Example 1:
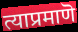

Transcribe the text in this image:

त्याप्रमाणॆ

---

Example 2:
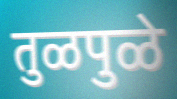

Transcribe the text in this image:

तुळपुळे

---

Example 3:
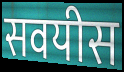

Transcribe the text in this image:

सवयीस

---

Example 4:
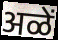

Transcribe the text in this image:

अळें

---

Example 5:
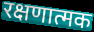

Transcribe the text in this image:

रक्षणात्मक